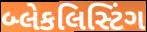
બ્લેકલિસ્ટિંગ